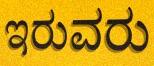
ಇರುವರು